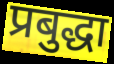
प्रबुद्धा